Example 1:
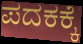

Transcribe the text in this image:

ಪದಕಕ್ಕೆ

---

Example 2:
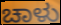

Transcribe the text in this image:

ಚಾಳು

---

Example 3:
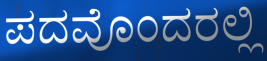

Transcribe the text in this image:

ಪದವೊಂದರಲ್ಲಿ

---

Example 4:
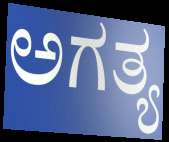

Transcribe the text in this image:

ಅಗತ್ಯ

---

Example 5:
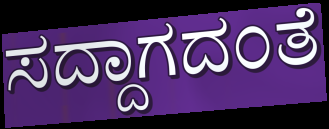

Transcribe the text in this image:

ಸದ್ದಾಗದಂತೆ